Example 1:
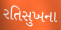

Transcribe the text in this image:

રતિસુખના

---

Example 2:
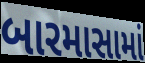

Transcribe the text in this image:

બારમાસામાં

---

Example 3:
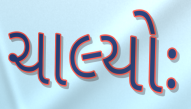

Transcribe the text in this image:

ચાલ્યોઃ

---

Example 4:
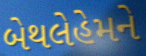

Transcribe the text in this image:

બેથલેહેમને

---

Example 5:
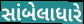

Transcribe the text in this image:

સાંબેલાધારે